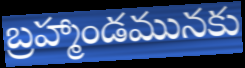
బ్రహ్మాండమునకు